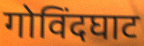
गोविंदघाट